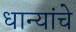
धान्यांचे